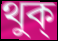
থুক্